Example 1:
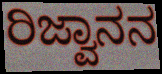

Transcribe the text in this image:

ರಿಜ್ವಾನನ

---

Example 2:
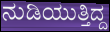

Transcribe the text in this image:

ನುಡಿಯುತ್ತಿದ್ದ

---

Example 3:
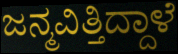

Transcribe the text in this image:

ಜನ್ಮವಿತ್ತಿದ್ದಾಳೆ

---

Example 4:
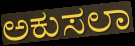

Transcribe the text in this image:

ಅಕುಸಲಾ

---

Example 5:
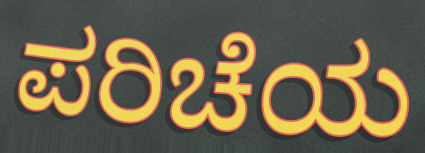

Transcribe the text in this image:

ಪರಿಚೆಯ